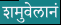
शमुवेलानं